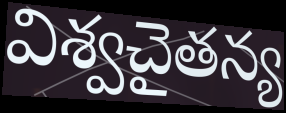
విశ్వచైతన్య